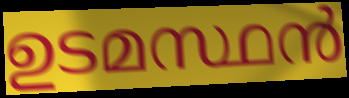
ഉടമസ്ഥൻ